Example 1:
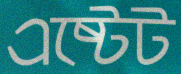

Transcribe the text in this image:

এষ্টেট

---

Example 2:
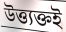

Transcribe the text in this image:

উত্ত্যক্তই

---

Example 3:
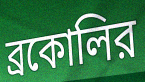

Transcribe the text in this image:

ব্রকোলির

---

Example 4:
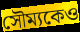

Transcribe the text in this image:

সৌম্যকেও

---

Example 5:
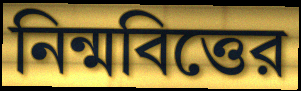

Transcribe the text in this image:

নিন্মবিত্তের